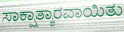
ಸಾಕ್ಷಾತ್ಕಾರವಾಯಿತು